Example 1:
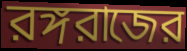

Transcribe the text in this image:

রঙ্গরাজের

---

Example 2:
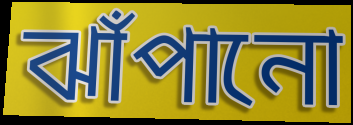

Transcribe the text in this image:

ঝাঁপানো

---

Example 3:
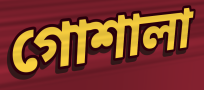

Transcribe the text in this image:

গোশালা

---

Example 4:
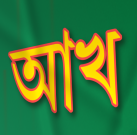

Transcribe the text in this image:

আখ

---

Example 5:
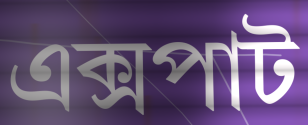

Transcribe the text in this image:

এক্সপাট